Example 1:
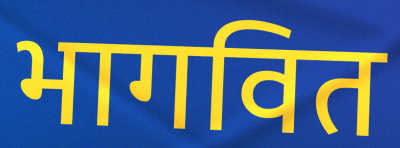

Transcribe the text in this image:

भागवित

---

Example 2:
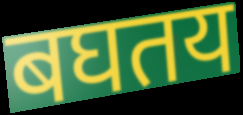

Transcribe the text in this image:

बघतय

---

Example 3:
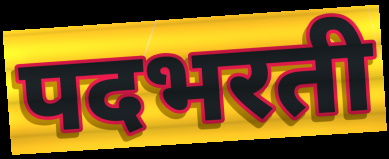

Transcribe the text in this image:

पदभरती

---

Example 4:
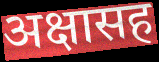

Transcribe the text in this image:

अक्षासह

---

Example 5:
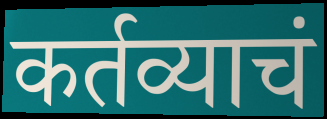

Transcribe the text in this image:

कर्तव्याचं